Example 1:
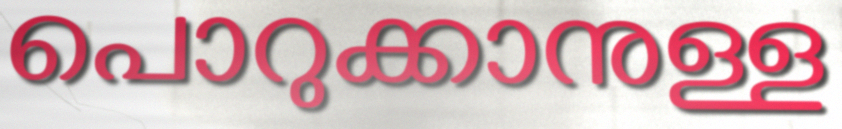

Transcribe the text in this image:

പൊറുക്കാനുള്ള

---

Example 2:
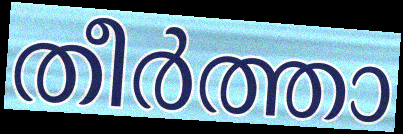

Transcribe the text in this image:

തീർത്താ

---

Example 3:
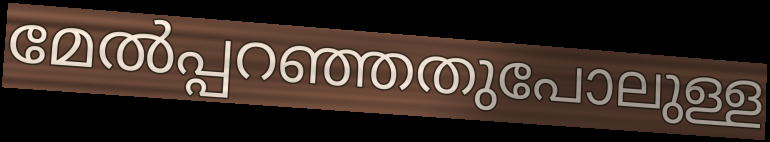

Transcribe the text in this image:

മേൽപ്പറഞ്ഞതുപോലുള്ള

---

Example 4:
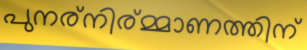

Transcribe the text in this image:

പുനര്നിര്മ്മാണത്തിന്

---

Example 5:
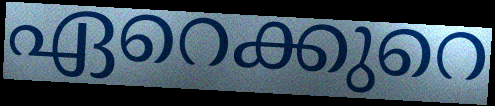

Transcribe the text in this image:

ഏറെക്കുറെ